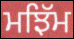
ਮਝਿੱਮ